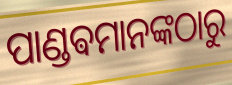
ପାଣ୍ଡଵମାନଙ୍କଠାରୁ